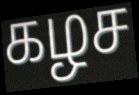
கழச